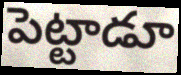
పెట్టాడూ